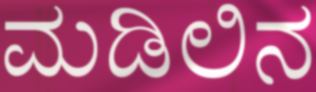
ಮಡಿಲಿನ